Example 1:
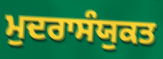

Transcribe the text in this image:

ਮੁਦਰਾਸੰਯੁਕਤ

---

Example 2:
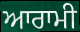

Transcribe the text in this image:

ਆਰਾਮੀ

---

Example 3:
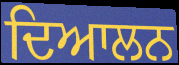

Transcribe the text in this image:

ਦਿਆਲਨ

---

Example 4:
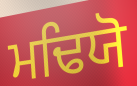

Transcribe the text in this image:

ਮਢਿਯੋ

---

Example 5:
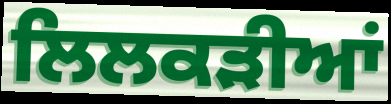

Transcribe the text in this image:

ਲਿਲਕੜੀਆਂ